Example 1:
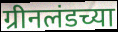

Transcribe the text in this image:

ग्रीनलंडच्या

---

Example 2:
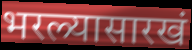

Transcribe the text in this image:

भरल्यासारखं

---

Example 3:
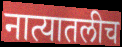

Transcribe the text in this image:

नात्यातलीच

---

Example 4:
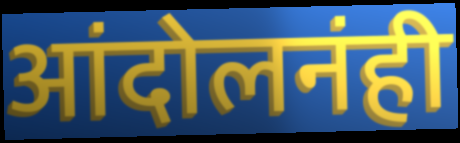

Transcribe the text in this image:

आंदोलनंही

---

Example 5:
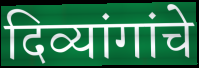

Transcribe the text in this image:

दिव्यांगांचे